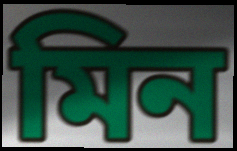
মিন